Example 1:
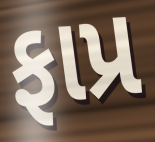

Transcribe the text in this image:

ફાપ્ર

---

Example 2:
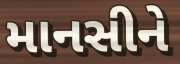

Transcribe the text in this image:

માનસીને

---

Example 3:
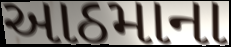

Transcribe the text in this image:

આઠમાના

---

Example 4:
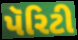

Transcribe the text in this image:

પૅરિટી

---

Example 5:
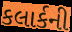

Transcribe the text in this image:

કલાર્કની